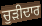
ਚੁੜੀਦਾਰ